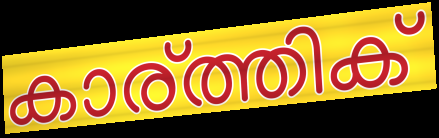
കാര്ത്തിക്